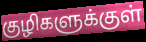
குழிகளுக்குள்